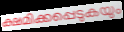
ക്ഷമിക്കപ്പെടുകയും